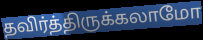
தவிர்த்திருக்கலாமோ